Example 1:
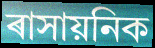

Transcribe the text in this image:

ৰাসায়নিক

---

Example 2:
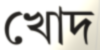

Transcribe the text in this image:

খোদ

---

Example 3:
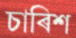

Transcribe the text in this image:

চাৰিশ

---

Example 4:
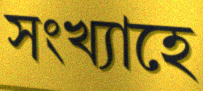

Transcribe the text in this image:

সংখ্যাহে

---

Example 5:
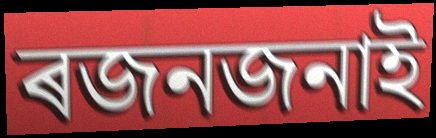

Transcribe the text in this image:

ৰজনজনাই